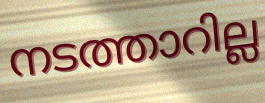
നടത്താറില്ല